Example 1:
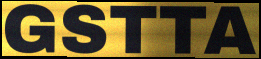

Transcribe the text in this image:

GSTTA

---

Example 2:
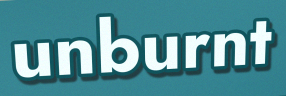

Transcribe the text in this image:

unburnt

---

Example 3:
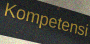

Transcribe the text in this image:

Kompetensi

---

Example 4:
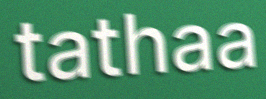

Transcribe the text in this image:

tathaa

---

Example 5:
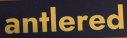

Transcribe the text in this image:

antlered